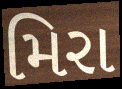
મિરા